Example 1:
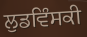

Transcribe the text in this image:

ਲੁਡਵਿੰਸਕੀ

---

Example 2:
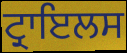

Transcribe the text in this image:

ਟ੍ਰਾਇਲਸ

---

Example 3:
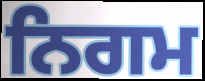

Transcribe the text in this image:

ਨਿਗਮ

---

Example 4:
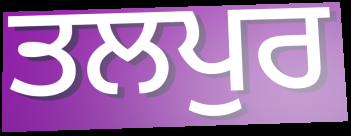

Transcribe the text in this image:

ਤਲਪੁਰ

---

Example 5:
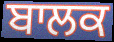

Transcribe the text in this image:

ਬਾਲਕ